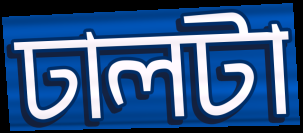
ঢালটা